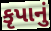
કૃપાનું